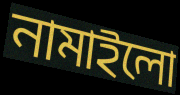
নামাইলো